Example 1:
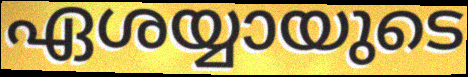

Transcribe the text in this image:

ഏശയ്യായുടെ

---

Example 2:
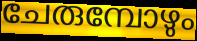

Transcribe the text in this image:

ചേരുമ്പോഴും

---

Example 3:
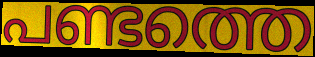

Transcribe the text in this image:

പണ്ടത്തെ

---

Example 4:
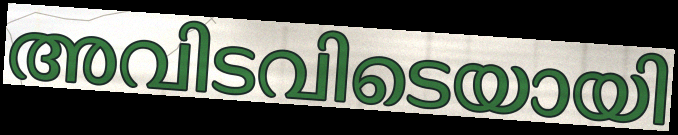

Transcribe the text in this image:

അവിടവിടെയായി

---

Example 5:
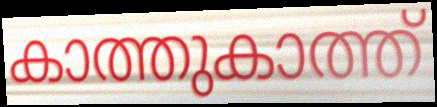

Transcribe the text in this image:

കാത്തുകാത്ത്